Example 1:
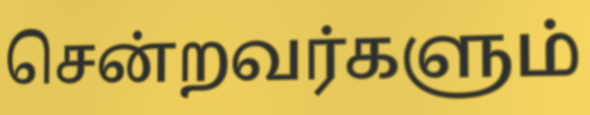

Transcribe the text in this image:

சென்றவர்களும்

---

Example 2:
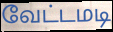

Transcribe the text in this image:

வேட்டமடி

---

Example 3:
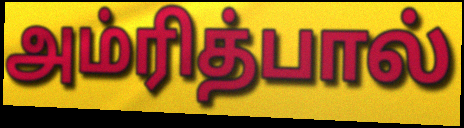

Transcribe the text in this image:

அம்ரித்பால்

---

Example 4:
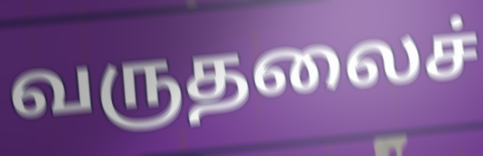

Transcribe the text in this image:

வருதலைச்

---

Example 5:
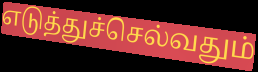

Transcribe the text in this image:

எடுத்துச்செல்வதும்